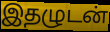
இதழுடன்